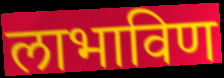
लाभाविण